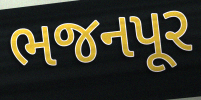
ભજનપૂર